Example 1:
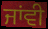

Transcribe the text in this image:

ਜਾਂਵੀ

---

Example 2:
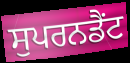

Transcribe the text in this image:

ਸੁਪਰਨਡੈਂਟ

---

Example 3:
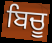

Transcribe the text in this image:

ਬਿਚੂ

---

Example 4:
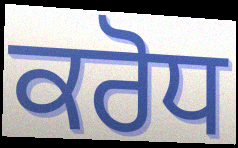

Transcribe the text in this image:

ਕਰੋਧ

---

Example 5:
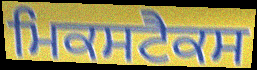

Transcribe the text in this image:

ਮਿਕਸਟੈਕਸ